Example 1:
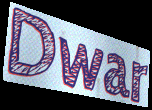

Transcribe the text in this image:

Dwar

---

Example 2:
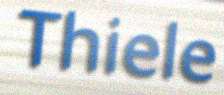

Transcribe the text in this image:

Thiele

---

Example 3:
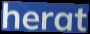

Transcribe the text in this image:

herat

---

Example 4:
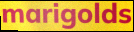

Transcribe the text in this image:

marigolds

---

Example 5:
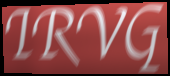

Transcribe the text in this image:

IRVG